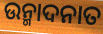
ଉନ୍ମାଦନାତ